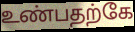
உண்பதற்கே